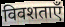
विवशताएँ